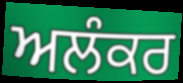
ਅਲੰਕਰ